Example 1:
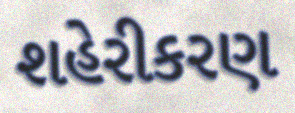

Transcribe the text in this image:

શહેરીકરણ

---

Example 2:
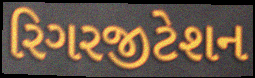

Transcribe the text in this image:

રિગરજીટેશન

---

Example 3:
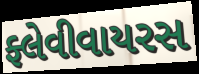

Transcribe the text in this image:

ફ્લેવીવાયરસ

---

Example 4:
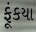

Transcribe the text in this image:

ફૂંકયા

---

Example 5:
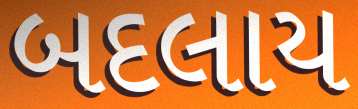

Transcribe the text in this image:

બદલાય